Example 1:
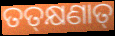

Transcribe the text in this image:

ତତ୍‍କ୍ଷଣାତ୍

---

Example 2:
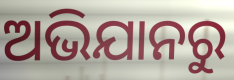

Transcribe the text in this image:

ଅଭିଯାନରୁ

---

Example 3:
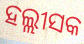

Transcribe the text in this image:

ହଲ୍ଲୀସକ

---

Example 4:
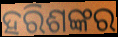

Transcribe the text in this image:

ହରିଶଙ୍କର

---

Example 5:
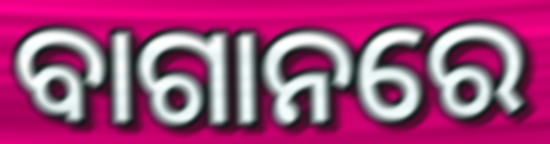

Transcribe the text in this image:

ବାଗାନରେ